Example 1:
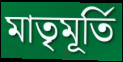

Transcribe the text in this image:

মাতৃমূর্তি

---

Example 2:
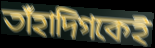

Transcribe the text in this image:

তাঁহাদিগকেই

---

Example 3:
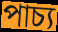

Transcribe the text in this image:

পাচ্য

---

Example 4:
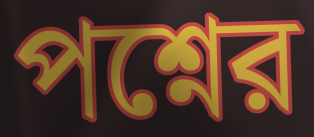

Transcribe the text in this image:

পশ্নের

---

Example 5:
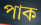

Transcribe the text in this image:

পাক